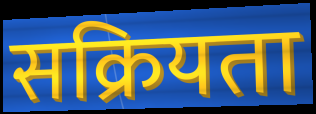
सक्रियता